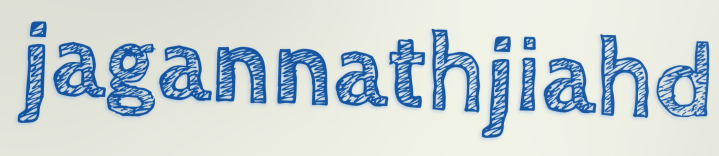
jagannathjiahd